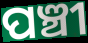
ପଞ୍ଚୀ